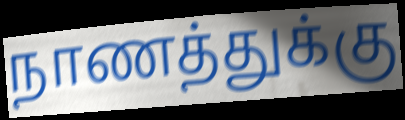
நாணத்துக்கு